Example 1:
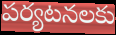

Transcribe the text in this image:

పర్యటనలకు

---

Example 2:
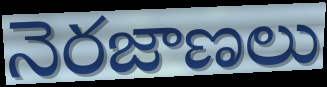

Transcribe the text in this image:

నెరజాణలు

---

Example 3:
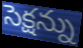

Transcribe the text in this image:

సెక్షన్ను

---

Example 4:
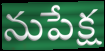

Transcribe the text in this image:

నుపేక్ష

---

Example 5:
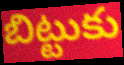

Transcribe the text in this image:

బిట్టుకు